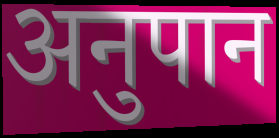
अनुपान